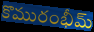
కొమురంభీమ్